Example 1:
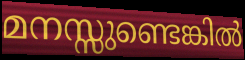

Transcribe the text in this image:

മനസ്സുണ്ടെങ്കിൽ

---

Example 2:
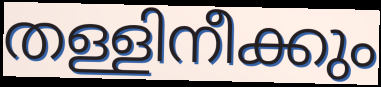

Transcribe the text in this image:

തള്ളിനീക്കും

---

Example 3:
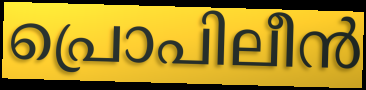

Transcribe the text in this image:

പ്രൊപിലീൻ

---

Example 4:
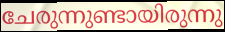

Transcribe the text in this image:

ചേരുന്നുണ്ടായിരുന്നു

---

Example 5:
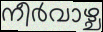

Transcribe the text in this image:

നീർവാഴ്ച